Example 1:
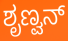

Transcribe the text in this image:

ಶೃಣ್ವನ್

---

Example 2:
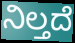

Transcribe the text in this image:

ನಿಲ್ತದೆ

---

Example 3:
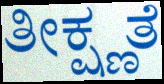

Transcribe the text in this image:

ತೀಕ್ಷ್ಣತೆ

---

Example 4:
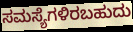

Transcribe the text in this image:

ಸಮಸ್ಯೆಗಳಿರಬಹುದು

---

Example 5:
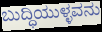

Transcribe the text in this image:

ಬುದ್ಧಿಯುಳ್ಳವನು